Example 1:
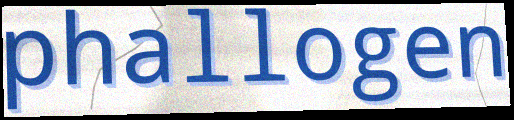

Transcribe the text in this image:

phallogen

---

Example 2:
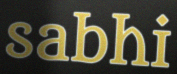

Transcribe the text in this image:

sabhi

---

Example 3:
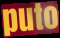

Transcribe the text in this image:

puto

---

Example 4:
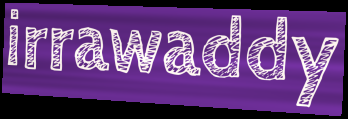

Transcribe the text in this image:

irrawaddy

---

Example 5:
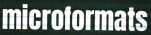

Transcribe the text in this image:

microformats